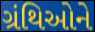
ગ્રંથિઓને